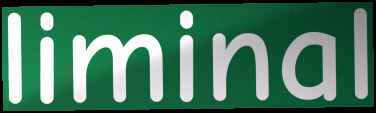
liminal